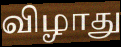
விழாது